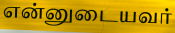
என்னுடையவர்